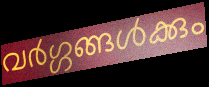
വർഗ്ഗങ്ങൾക്കും